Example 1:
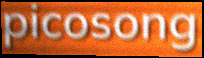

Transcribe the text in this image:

picosong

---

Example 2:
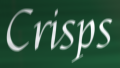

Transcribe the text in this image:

Crisps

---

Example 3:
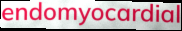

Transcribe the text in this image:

endomyocardial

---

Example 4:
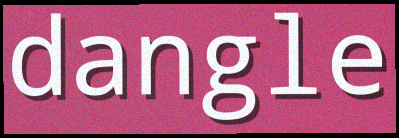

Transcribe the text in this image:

dangle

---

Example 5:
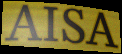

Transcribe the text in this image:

AISA